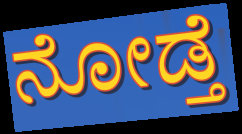
ನೋಡ್ತೆ